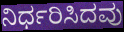
ನಿರ್ಧರಿಸಿದವು